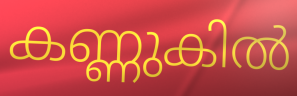
കണ്ണുകിൽ